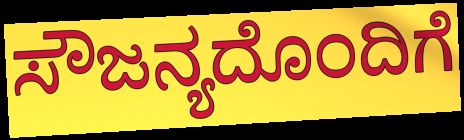
ಸೌಜನ್ಯದೊಂದಿಗೆ